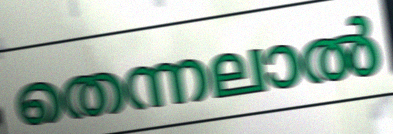
തെന്നലാൽ